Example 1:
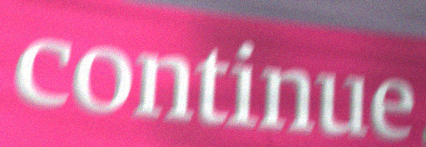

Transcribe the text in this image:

continue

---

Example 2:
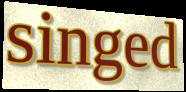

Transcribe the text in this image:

singed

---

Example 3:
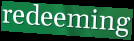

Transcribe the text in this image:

redeeming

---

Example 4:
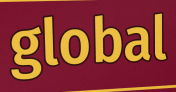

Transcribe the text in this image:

global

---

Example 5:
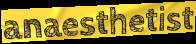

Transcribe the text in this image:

anaesthetist